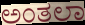
ಅಂತಲಾ